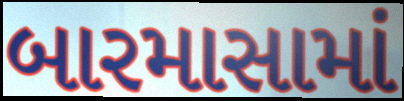
બારમાસામાં